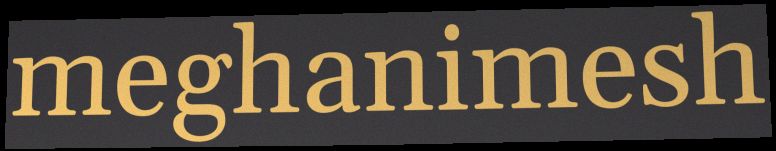
meghanimesh